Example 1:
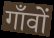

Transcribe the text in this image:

गाँवों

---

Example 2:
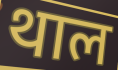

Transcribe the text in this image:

थाल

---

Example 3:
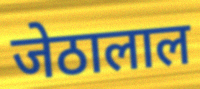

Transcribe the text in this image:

जेठालाल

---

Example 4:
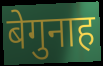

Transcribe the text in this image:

बेगुनाह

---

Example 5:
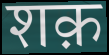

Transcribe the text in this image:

शक़